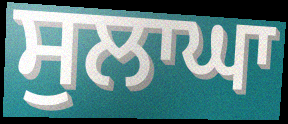
ਸੁਲਾਘਾ